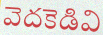
వెదకెడివి